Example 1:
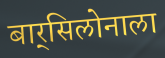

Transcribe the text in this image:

बार्सिलोनाला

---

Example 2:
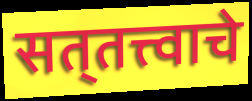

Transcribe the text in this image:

सत्‌तत्त्वाचे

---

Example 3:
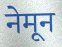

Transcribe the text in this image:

नेमून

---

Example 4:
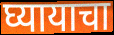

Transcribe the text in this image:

घ्यायाचा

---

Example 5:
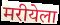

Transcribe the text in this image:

मरीयेला